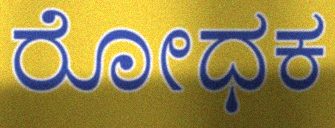
ರೋಧಕ